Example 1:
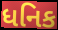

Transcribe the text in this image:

ધનિક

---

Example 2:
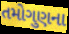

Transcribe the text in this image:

તમોગુણના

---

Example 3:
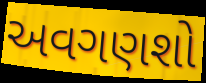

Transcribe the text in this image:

અવગણશો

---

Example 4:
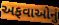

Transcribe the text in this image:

અફવાઓનું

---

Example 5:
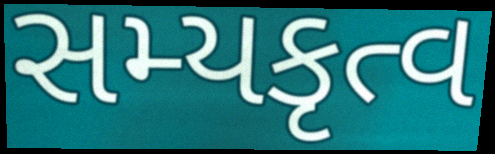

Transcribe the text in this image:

સમ્યકૃત્વ